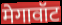
मेगावॉट